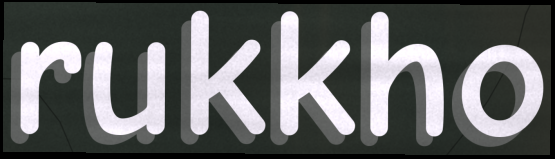
rukkho